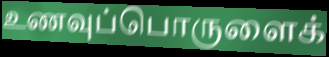
உணவுப்பொருளைக்